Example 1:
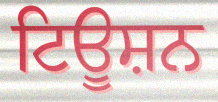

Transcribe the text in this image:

ਟਿਊਸ਼ਨ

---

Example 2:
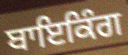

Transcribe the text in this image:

ਬਾਇਕਿੰਗ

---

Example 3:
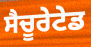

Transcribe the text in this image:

ਸੈਚੂਰੇਟੇਡ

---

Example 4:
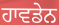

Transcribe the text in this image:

ਹਾਵਡੇਨ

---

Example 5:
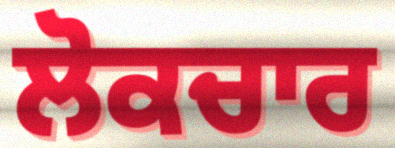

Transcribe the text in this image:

ਲੋਕਚਾਰ